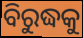
ବିରୁଦ୍ଧକୁ